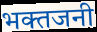
भक्तजनी